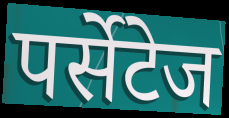
पर्सेटेज